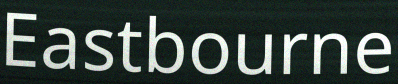
Eastbourne